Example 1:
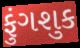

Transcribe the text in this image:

ફુંગશુક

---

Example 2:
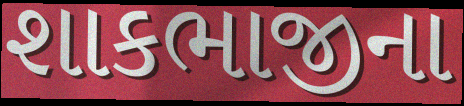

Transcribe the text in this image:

શાકભાજીના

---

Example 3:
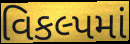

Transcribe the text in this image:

વિકલ્પમાં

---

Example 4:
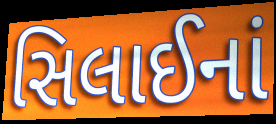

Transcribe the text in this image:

સિલાઈનાં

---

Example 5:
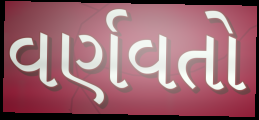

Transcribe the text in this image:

વર્ણવતો